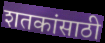
शतकांसाठी